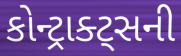
કોન્ટ્રાક્ટ્સની